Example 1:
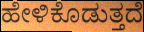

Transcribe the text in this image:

ಹೇಳಿಕೊಡುತ್ತದೆ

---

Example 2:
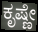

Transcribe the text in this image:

ಕೃಷ್ಣೇ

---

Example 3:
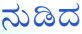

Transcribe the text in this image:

ನುಡಿದ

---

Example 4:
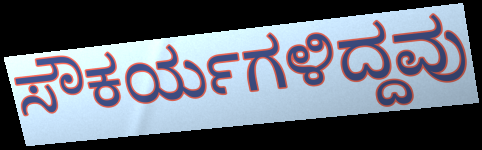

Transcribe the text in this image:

ಸೌಕರ್ಯಗಳಿದ್ದವು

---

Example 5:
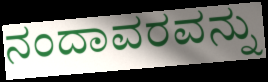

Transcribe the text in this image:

ನಂದಾವರವನ್ನು